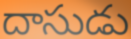
దాసుడు